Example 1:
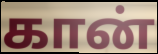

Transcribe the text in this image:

கான்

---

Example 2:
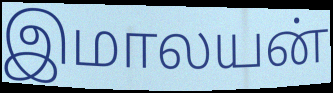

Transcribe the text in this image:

இமாலயன்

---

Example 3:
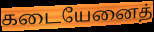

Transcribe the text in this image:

கடையேனைத்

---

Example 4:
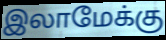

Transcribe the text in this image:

இலாமேக்கு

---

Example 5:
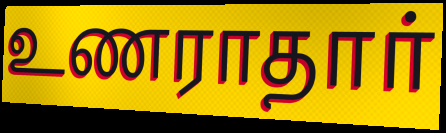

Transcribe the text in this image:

உணராதார்